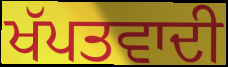
ਖੱਪਤਵਾਦੀ